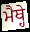
ਮੈਥ੍ਹੇ